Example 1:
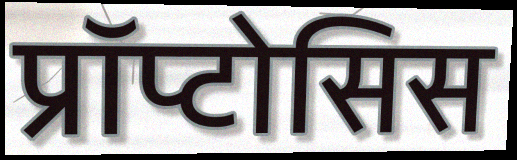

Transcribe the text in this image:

प्रॉप्टोसिस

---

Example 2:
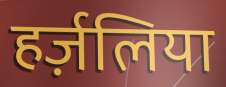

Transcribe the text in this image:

हर्ज़लिया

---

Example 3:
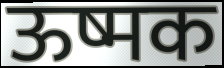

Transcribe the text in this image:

ऊष्मक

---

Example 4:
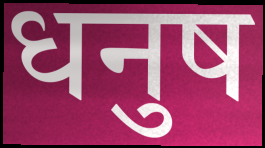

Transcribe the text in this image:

धनुष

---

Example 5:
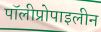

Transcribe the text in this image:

पॉलीप्रोपाइलीन